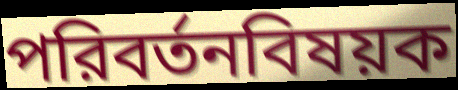
পরিবর্তনবিষয়ক